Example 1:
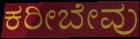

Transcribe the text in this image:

ಕರೀಬೇವು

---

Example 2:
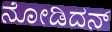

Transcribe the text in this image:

ನೋಡಿದನ್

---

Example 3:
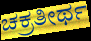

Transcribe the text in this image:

ಚಕ್ರತೀರ್ಥ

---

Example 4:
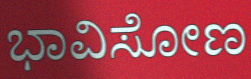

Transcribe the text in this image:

ಭಾವಿಸೋಣ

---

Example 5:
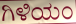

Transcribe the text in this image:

ಗಿಳಿಯಂ